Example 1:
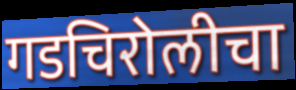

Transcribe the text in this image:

गडचिरोलीचा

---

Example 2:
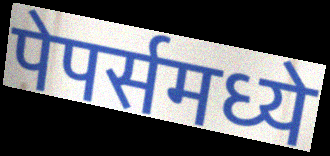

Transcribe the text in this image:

पेपर्समध्ये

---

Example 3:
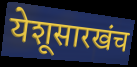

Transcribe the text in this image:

येशूसारखंच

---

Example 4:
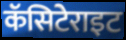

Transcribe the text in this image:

कॅसिटेराइट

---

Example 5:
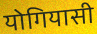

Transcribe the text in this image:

योगियासी